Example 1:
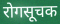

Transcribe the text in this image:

रोगसूचक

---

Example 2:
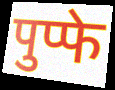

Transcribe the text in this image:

पुप्फे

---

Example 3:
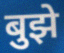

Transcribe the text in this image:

बुझे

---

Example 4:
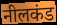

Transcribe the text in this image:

नीलकंड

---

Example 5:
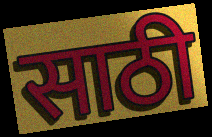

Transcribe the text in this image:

साठी